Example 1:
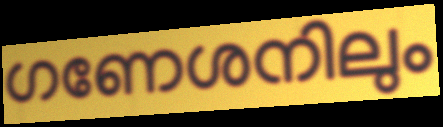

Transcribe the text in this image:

ഗണേശനിലും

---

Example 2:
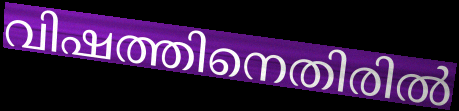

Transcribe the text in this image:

വിഷത്തിനെതിരിൽ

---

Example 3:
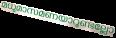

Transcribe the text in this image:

മധുമാസമണയാറുണ്ടല്ലോ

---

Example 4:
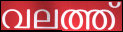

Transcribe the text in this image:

വലത്ത്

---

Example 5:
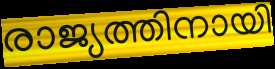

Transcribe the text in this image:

രാജ്യത്തിനായി